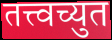
तत्त्वच्युत